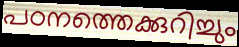
പഠനത്തെക്കുറിച്ചും